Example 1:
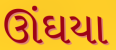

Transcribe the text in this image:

ઊંઘયા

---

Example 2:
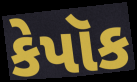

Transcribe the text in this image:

કેપૉક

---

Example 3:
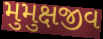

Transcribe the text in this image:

મુમુક્ષજીવ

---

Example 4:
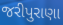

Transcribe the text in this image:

જરીપુરાણા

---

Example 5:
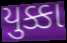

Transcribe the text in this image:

યુક્કા